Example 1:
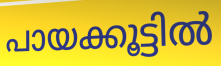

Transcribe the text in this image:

പായക്കൂട്ടിൽ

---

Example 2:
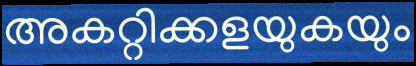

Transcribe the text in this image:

അകറ്റിക്കളയുകയും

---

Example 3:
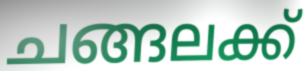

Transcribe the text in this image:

ചങ്ങലക്ക്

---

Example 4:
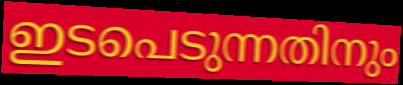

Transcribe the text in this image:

ഇടപെടുന്നതിനും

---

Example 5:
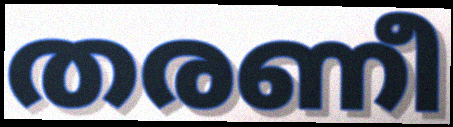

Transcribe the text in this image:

തരണീ